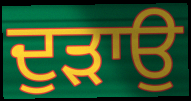
ਦੁੜਾਉ